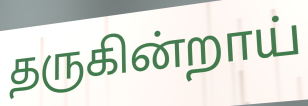
தருகின்றாய்